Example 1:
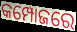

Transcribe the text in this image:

କମ୍ପୋଜରେ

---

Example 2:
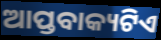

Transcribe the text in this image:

ଆପ୍ତବାକ୍ୟଟିଏ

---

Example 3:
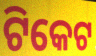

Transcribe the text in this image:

ଟିକେଟ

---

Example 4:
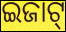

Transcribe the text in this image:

ଇଜାଟ୍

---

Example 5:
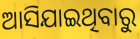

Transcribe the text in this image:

ଆସିଯାଇଥିବାରୁ